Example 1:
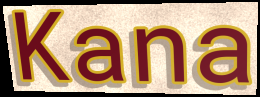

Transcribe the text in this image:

Kana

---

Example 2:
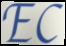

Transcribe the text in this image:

EC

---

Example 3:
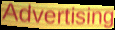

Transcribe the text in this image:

Advertising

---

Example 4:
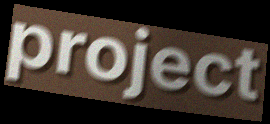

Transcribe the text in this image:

project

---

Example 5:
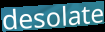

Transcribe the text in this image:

desolate